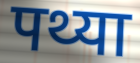
पथ्या